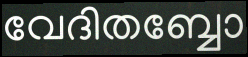
വേദിതബ്ബോ